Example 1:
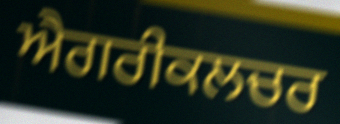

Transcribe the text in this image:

ਐਗਰੀਕਲਚਰ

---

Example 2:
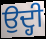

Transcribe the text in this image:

ਉਦ੍ਹੀ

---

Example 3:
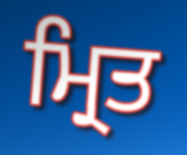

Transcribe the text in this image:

ਮ੍ਰਿਤ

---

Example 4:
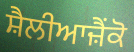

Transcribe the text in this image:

ਸ਼ੈਲੀਆਜ਼ੈਂਕੋ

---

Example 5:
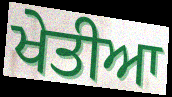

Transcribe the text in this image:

ਖੇਤੀਆ